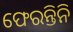
ଫେରନ୍ତିନି